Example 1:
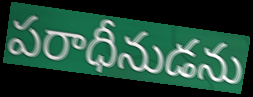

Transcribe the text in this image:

పరాధీనుడను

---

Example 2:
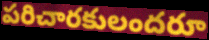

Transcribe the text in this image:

పరిచారకులందరూ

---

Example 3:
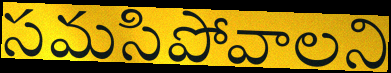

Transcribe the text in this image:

సమసిపోవాలని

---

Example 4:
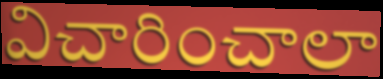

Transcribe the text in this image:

విచారించాలా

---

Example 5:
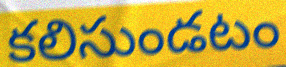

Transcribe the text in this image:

కలిసుండటం